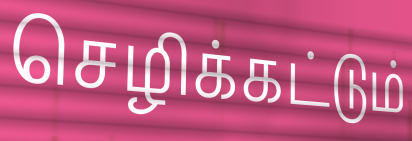
செழிக்கட்டும்